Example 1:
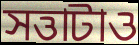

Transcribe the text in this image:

সত্তাটাও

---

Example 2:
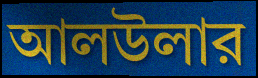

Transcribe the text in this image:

আলউলার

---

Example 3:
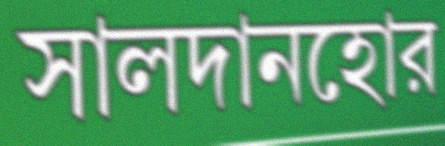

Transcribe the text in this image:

সালদানহোর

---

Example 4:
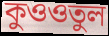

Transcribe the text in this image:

কুওওতুল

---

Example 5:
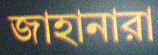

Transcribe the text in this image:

জাহানারা